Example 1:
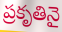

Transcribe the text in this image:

ప్రకృతినై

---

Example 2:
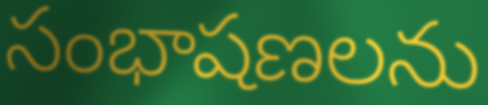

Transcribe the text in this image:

సంభాషణలను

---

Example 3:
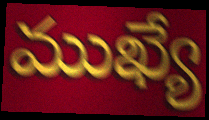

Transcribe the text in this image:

ముఖ్యే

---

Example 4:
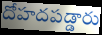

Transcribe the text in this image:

దోహదపడ్డారు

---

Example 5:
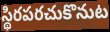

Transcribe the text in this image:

స్థిరపరచుకొనుట